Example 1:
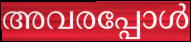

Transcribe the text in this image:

അവരപ്പോൾ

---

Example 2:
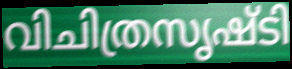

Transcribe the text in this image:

വിചിത്രസൃഷ്ടി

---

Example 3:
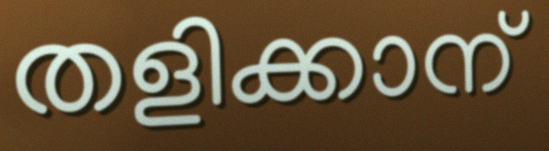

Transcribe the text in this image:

തളിക്കാന്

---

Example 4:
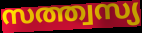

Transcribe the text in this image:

സത്ത്വസ്യ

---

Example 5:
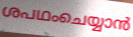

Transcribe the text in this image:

ശപഥംചെയ്യാൻ